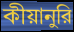
কীয়ানুরি